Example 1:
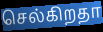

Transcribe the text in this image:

செல்கிறதா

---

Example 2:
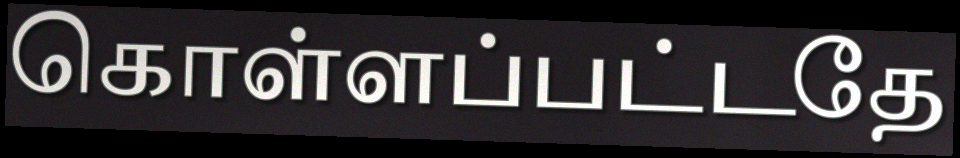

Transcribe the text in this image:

கொள்ளப்பட்டதே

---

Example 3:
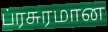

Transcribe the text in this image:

ப்ரசுரமான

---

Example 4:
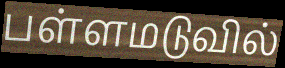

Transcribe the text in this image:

பள்ளமடுவில்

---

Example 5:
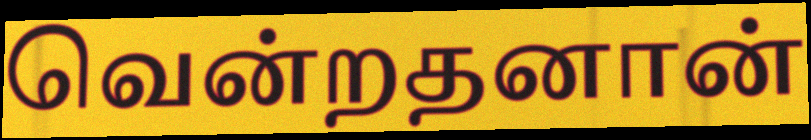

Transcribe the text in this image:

வென்றதனான்